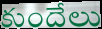
కుందేలు